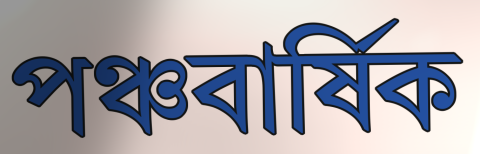
পঞ্চবার্ষিক